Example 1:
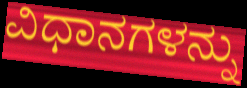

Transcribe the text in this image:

ವಿಧಾನಗಳನ್ನು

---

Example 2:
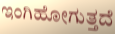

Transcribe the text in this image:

ಇಂಗಿಹೋಗುತ್ತದೆ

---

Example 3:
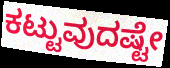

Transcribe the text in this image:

ಕಟ್ಟುವುದಷ್ಟೇ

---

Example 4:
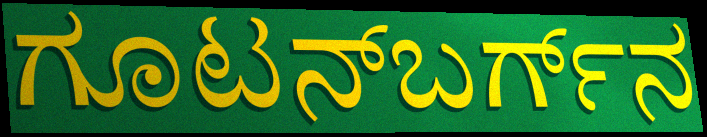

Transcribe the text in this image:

ಗೂಟನ್‌ಬರ್ಗ್‌ನ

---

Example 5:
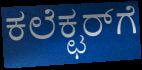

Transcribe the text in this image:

ಕಲೆಕ್ಟರ್‌ಗೆ